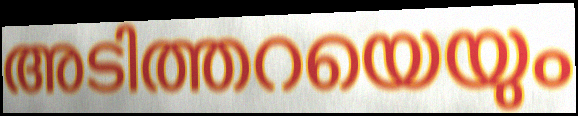
അടിത്തറയെയും